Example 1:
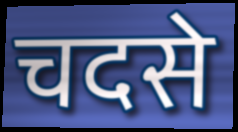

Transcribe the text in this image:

चदसे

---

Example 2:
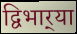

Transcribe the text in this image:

द्विभार्या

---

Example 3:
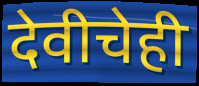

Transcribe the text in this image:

देवीचेही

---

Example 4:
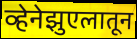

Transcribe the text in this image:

व्हेनेझुएलातून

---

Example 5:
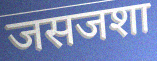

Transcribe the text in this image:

जसजशा